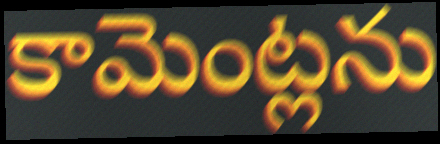
కామెంట్లను